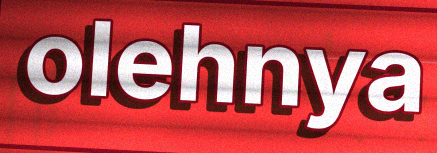
olehnya